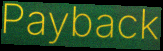
Payback